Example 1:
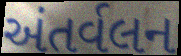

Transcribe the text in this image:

અંતર્વલન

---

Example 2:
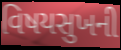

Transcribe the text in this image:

વિષયસુખની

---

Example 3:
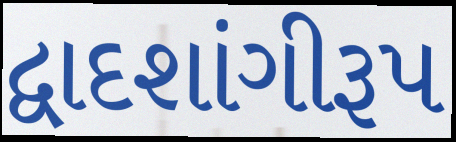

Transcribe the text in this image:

દ્વાદશાંગીરૂપ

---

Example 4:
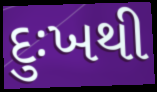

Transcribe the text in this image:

દુઃખથી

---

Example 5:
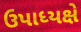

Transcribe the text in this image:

ઉપાધ્યક્ષે